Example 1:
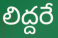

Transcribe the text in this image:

లిద్దరే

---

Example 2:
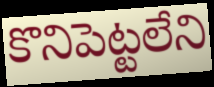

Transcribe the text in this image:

కొనిపెట్టలేని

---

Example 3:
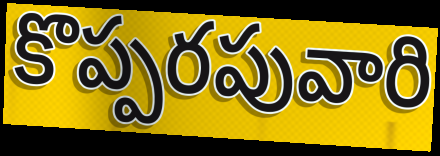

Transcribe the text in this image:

కొప్పరపువారి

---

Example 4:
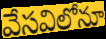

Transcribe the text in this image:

వేసవిలోనూ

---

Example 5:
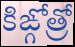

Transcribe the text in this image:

కిఙ్గోత్రో